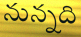
నున్నది